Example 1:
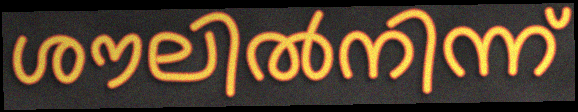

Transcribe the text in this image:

ശൗലിൽനിന്ന്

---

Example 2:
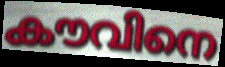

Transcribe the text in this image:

കൗവിനെ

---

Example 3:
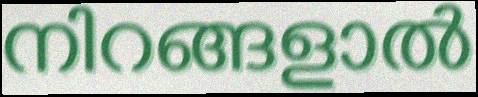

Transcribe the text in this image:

നിറങ്ങളാൽ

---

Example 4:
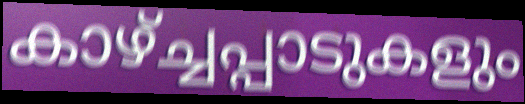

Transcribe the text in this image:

കാഴ്ച്ചപ്പാടുകളും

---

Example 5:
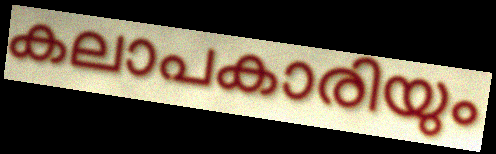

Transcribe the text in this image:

കലാപകാരിയും